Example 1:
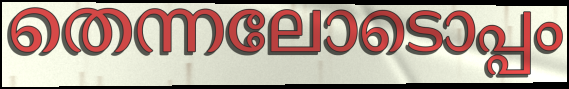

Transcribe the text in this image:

തെന്നലോടൊപ്പം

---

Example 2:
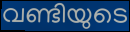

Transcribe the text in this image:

വണ്ടിയുടെ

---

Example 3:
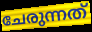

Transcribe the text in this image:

ചേരുന്നത്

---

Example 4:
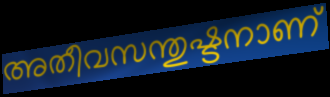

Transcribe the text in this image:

അതീവസന്തുഷ്ടനാണ്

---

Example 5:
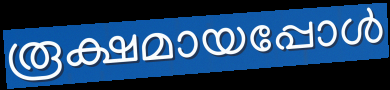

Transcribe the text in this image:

രൂക്ഷമായപ്പോൾ